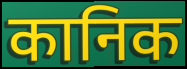
कानिक